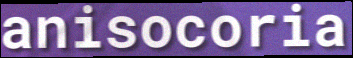
anisocoria